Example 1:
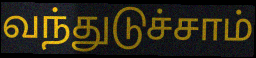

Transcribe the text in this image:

வந்துடுச்சாம்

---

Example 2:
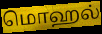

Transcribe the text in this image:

மொஹல்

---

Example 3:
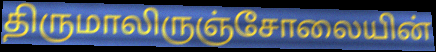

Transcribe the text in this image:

திருமாலிருஞ்சோலையின்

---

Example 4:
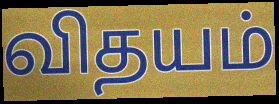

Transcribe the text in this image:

விதயம்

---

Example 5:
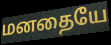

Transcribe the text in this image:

மனதையே